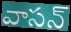
వాసన్